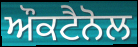
ਔਕਟੈਨੋਲ